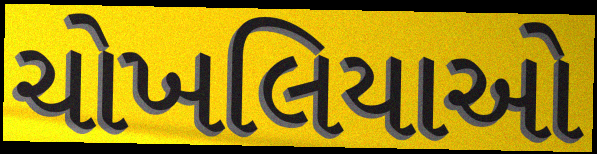
ચોખલિયાઓ